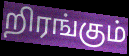
றிரங்கும்